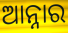
ଆନ୍ନାର